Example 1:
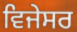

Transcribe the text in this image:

ਵਿਜੇਸਰ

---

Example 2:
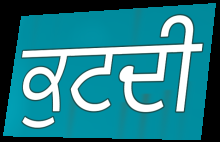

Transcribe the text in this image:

ਕੁਟਦੀ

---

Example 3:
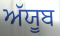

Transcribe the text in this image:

ਅੱਯੂਬ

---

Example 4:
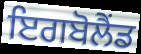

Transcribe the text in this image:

ਇਗਬੋਲੈਂਡ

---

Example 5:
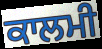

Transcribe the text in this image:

ਕਾਲਮੀ